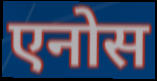
एनोस